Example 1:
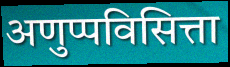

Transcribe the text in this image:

अणुप्पविसित्ता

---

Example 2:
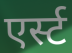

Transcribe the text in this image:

एर्स्ट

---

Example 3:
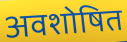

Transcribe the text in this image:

अवशोषित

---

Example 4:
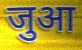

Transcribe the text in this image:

जुआ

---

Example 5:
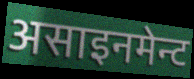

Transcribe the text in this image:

असाइनमेन्ट